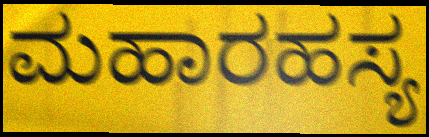
ಮಹಾರಹಸ್ಯ